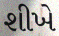
શીખે